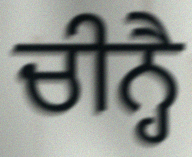
ਚੀਨ੍ਹ੍ਹੈ